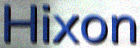
Hixon